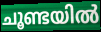
ചൂണ്ടയിൽ